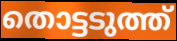
തൊട്ടടുത്ത്